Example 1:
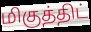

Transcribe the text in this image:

மிகுத்திட்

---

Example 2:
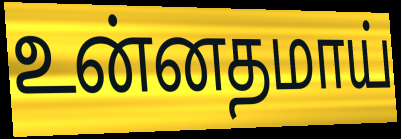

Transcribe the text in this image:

உன்னதமாய்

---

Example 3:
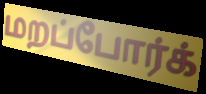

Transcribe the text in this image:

மறப்போர்க்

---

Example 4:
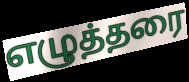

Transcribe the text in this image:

எழுத்தரை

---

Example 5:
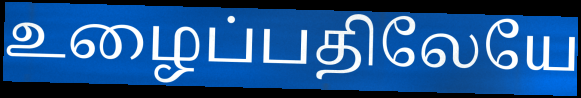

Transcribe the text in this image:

உழைப்பதிலேயே